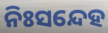
ନିଃସନ୍ଦେହ